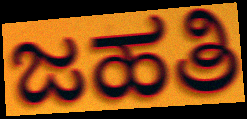
ಜಹತಿ